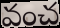
వంచ